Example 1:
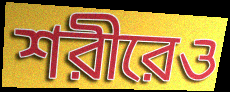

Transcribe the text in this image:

শরীরেও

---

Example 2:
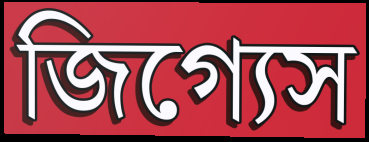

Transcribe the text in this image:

জিগ্যেস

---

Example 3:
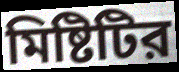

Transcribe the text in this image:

মিষ্টিটির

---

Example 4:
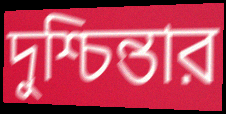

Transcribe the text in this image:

দুশ্চিন্তার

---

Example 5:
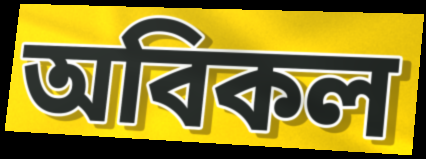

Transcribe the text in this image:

অবিকল